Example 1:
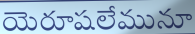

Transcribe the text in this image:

యెరూషలేమునూ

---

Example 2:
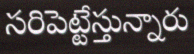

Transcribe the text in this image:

సరిపెట్టేస్తున్నారు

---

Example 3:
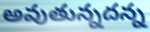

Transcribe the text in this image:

అవుతున్నదన్న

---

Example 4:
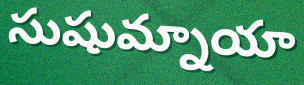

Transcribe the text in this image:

సుషుమ్నాయా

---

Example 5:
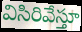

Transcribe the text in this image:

విసిరివేస్తూ